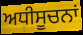
ਅਧੀਸੂਚਨਾਂ